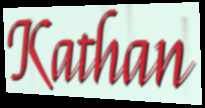
Kathan